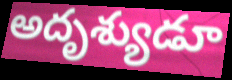
అదృశ్యుడూ